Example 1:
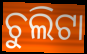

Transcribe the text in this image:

ଚୁଲିଟା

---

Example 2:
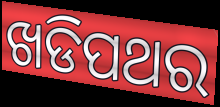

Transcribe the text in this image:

ଖଡିପଥର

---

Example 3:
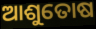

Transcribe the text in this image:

ଆଶୁତୋଷ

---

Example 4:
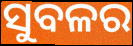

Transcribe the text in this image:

ସୁବଳର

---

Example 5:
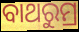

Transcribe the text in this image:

ବାଥରୁମ୍ର